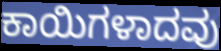
ಕಾಯಿಗಳಾದವು